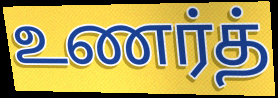
உணர்த்